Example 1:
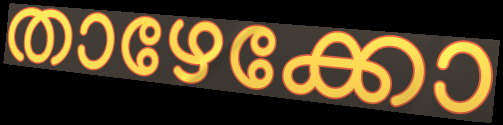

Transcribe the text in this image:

താഴേക്കോ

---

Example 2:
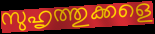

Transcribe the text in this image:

സുഹൃത്തുക്കളെ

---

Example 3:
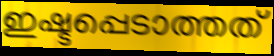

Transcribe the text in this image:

ഇഷ്ടപ്പെടാത്തത്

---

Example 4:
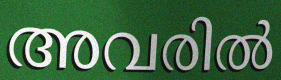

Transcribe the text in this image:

അവരിൽ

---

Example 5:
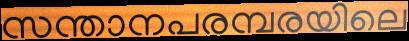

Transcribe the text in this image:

സന്താനപരമ്പരയിലെ